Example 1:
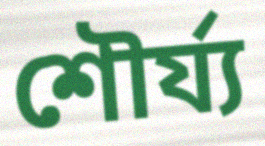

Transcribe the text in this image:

শৌৰ্য্য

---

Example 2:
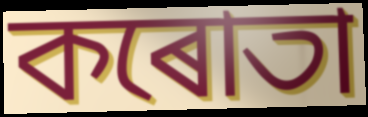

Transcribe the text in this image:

কৰোতা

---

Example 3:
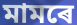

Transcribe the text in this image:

মামৰে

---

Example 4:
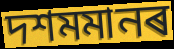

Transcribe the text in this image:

দশমমানৰ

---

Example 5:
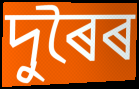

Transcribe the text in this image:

দুৰৈৰ